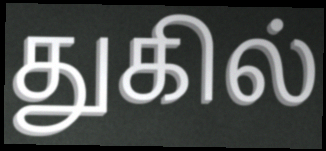
துகில்